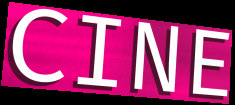
CINE